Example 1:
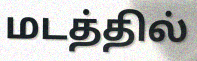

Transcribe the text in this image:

மடத்தில்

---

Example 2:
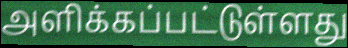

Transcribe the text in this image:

அளிக்கப்பட்டுள்ளது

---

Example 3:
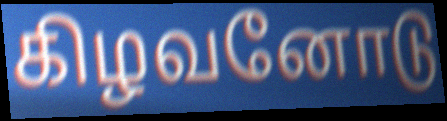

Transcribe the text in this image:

கிழவனோடு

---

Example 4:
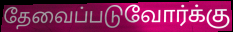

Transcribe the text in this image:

தேவைப்படுவோர்க்கு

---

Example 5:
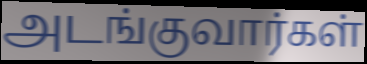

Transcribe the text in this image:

அடங்குவார்கள்